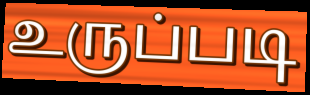
உருப்படி